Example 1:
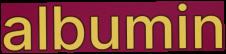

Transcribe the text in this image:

albumin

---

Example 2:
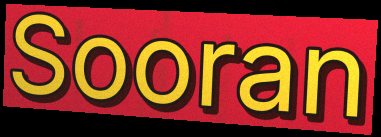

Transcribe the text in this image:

Sooran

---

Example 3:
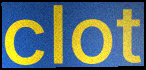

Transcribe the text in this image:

clot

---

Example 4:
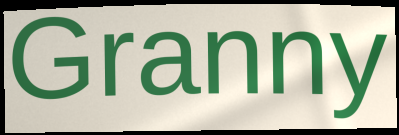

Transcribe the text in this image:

Granny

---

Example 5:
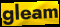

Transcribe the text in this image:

gleam